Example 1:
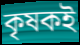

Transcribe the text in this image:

কৃষকই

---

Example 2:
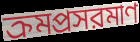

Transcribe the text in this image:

ক্রমপ্রসরমাণ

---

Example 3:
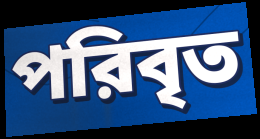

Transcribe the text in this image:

পরিবৃত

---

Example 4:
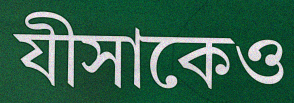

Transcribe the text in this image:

যীসাকেও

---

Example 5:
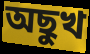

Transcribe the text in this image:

অছুখ